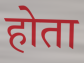
होता